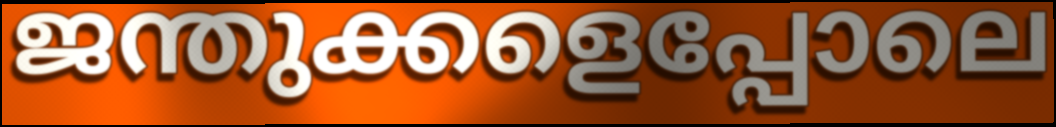
ജന്തുക്കളെപ്പോലെ